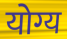
योग्य